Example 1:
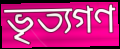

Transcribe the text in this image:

ভৃত্যগণ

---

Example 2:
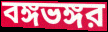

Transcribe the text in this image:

বঙ্গভঙ্গর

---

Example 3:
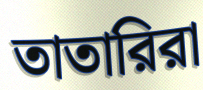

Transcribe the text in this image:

তাতারিরা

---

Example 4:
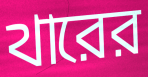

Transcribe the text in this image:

থারের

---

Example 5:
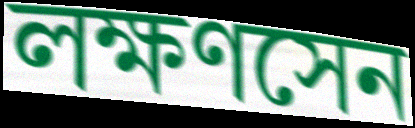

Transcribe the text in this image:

লক্ষণসেন